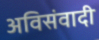
अविसंवादी